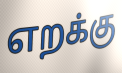
எறக்கு